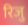
रिजु